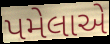
પમેલાએ